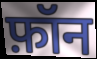
फ़ॉन